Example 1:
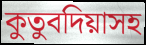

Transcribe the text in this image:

কুতুবদিয়াসহ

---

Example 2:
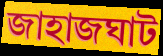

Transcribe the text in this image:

জাহাজঘাট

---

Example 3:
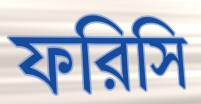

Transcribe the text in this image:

ফরিসি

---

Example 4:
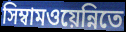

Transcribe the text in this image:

সিম্বামওয়েন্নিতে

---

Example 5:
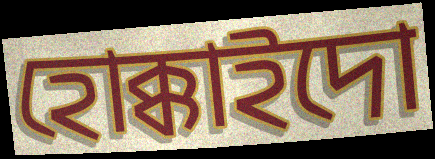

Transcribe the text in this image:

হোক্কাইদো